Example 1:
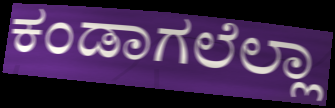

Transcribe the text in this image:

ಕಂಡಾಗಲೆಲ್ಲಾ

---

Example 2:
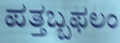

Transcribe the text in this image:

ಪತ್ತಬ್ಬಫಲಂ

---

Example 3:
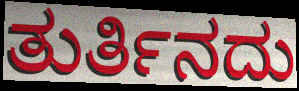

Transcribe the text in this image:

ತುರ್ತಿನದು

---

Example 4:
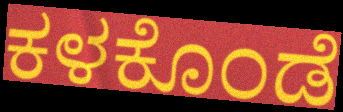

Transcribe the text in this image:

ಕಳಕೊಂಡೆ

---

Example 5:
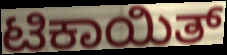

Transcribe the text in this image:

ಟಿಕಾಯಿತ್